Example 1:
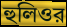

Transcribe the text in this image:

হুলিওর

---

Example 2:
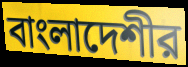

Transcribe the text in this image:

বাংলাদেশীর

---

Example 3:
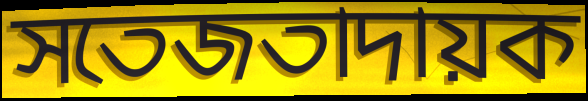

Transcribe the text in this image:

সতেজতাদায়ক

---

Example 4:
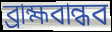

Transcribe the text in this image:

ব্রাহ্মবান্ধব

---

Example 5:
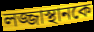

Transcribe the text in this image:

লজ্জাস্থানকে